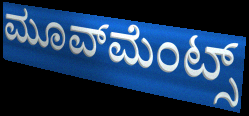
ಮೂವ್‍ಮೆಂಟ್ಸ್